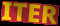
ITER